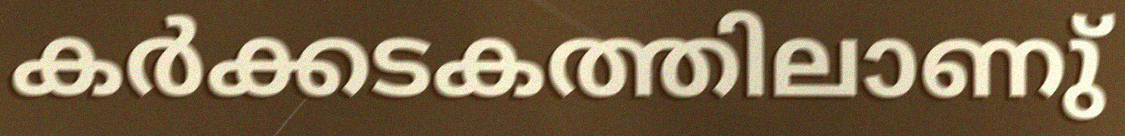
കർക്കടകത്തിലാണു്